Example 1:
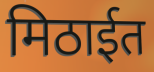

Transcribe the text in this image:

मिठाईत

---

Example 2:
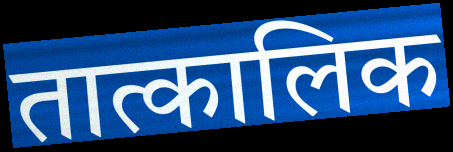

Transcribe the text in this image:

तात्कालिक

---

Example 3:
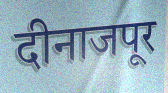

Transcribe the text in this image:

दीनाजपूर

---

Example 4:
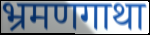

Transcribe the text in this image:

भ्रमणगाथा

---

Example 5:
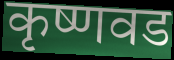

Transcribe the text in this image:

कृष्णवड